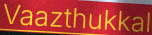
Vaazthukkal